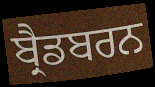
ਬ੍ਰੈਡਬਰਨ